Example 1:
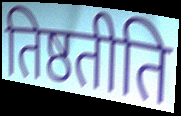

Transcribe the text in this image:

तिष्ठतीति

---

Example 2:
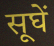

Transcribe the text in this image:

सूघें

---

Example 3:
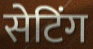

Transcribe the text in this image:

सेटिंग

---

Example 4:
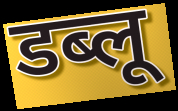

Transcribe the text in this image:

डब्लू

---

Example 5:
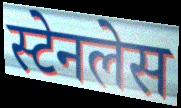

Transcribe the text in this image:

स्टेनलेस